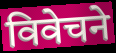
विवेचने